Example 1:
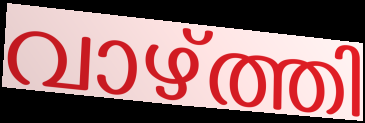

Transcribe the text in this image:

വാഴ്ത്തി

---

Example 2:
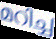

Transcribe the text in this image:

മറിച്ച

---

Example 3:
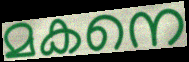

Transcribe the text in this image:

മകനെ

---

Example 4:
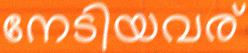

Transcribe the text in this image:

നേടിയവര്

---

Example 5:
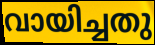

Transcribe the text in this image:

വായിച്ചതു